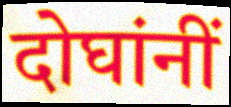
दोघांनीं